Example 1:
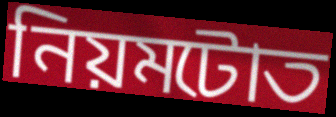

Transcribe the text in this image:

নিয়মটোত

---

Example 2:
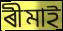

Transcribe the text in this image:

ৰীমাই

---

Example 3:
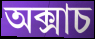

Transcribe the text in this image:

অক্সাচ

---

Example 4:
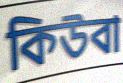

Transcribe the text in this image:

কিউবা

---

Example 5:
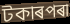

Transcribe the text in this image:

টকাৰপৰা